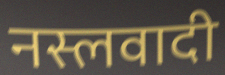
नस्लवादी